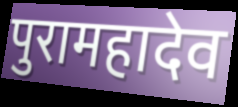
पुरामहादेव